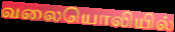
வலையொலியில்